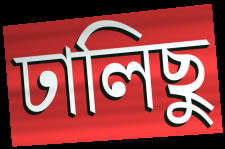
ঢালিছু